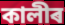
কালীৰ